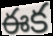
ఈక